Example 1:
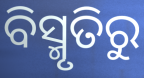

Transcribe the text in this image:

ବିସ୍ମୃତିରୁ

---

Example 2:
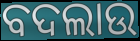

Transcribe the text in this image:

ବଦଲାଉ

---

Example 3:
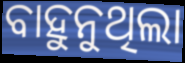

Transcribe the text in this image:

ବାହୁନୁଥିଲା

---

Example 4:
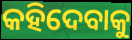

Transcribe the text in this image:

କହିଦେବାକୁ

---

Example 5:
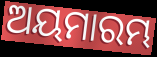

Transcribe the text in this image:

ଅୟମାରମ୍ଭ